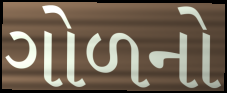
ગોળનો